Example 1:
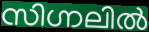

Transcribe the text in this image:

സിഗ്നലിൽ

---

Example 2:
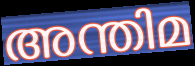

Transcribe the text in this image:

അന്തിമ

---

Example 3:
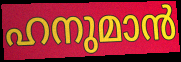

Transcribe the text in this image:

ഹനുമാൻ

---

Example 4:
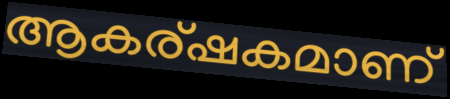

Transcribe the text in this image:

ആകര്ഷകമാണ്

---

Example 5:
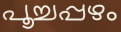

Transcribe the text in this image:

പൂച്ചപ്പഴം